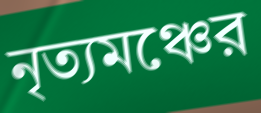
নৃত্যমঞ্চের